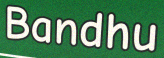
Bandhu